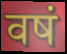
वषं